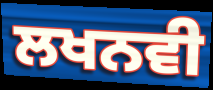
ਲਖਨਵੀ